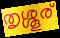
തൃശ്ശൂര്